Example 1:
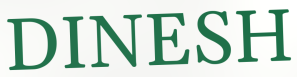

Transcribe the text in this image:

DINESH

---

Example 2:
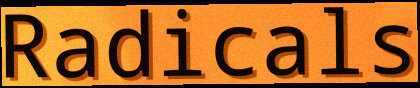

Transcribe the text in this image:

Radicals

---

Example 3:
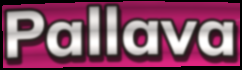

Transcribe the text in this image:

Pallava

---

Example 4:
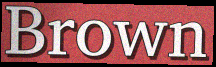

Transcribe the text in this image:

Brown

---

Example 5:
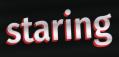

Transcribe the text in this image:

staring